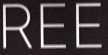
REE